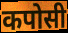
कपोसी